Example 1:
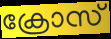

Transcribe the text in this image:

ക്രോസ്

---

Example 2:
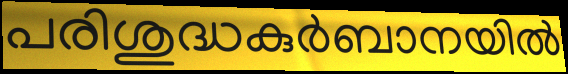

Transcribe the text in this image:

പരിശുദ്ധകുർബാനയിൽ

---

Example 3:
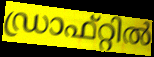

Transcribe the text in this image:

ഡ്രാഫ്റ്റിൽ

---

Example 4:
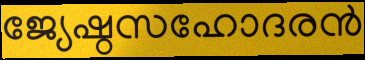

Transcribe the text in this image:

ജ്യേഷ്ഠസഹോദരൻ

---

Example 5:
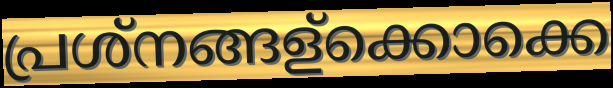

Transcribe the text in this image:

പ്രശ്നങ്ങള്ക്കൊക്കെ